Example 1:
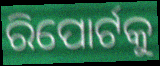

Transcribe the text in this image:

ରିପୋର୍ଟକୁ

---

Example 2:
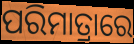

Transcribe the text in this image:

ପରିମାତ୍ରାରେ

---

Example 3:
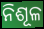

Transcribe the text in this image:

ନିଶୂଳ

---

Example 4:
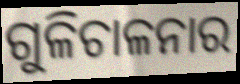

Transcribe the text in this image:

ଗୁଳିଚାଳନାର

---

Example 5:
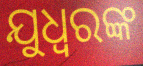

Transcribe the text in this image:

ଯୁଧ୍ୱରଙ୍କ